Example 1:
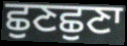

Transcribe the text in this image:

ਛੁਣਛੁਣਾ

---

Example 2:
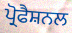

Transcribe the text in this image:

ਪ੍ਰੋਫੈਸ਼ਨਲ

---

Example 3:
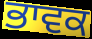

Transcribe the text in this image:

ਭਾਵਕ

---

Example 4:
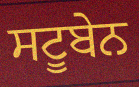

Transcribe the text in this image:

ਸਟੂਬੇਨ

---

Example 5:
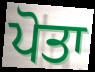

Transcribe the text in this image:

ਪੋਤਾ